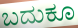
ಬದುಕೂ